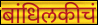
बांधिलकीचं